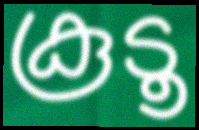
കൂടൂ